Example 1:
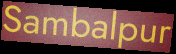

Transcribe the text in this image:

Sambalpur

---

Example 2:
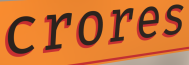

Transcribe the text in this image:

crores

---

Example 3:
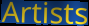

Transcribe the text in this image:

Artists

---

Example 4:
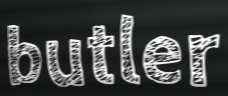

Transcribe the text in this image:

butler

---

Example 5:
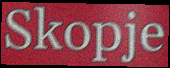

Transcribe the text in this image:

Skopje